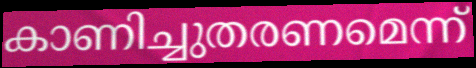
കാണിച്ചുതരണമെന്ന്